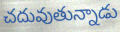
చదువుతున్నాడు